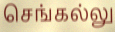
செங்கல்லு